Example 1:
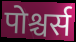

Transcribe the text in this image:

पोश्चर्स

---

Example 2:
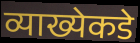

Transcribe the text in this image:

व्याख्येकडे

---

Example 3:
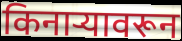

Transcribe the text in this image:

किनाऱ्यावरून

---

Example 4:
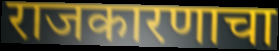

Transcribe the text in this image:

राजकारणाचा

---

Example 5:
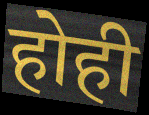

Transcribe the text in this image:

होही